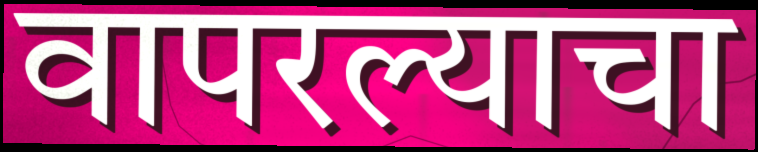
वापरल्याचा